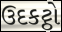
ઉદકટ્ઠો